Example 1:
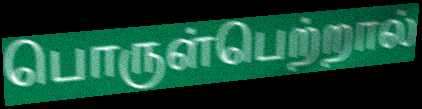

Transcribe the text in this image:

பொருள்பெற்றால்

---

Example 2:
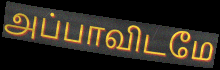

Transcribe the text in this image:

அப்பாவிடமே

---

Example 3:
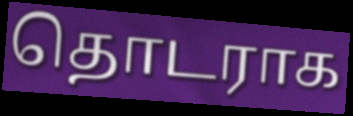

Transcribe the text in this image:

தொடராக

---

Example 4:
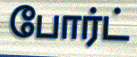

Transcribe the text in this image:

போர்ட்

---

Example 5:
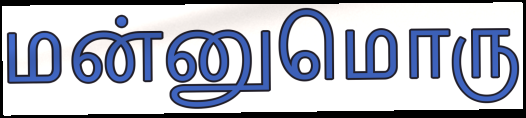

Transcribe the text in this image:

மன்னுமொரு